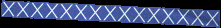
xxxxxxxxxxxxxxx